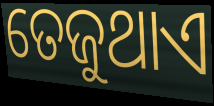
ତେଜୁଥାଏ